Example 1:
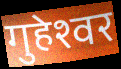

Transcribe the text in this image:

गुहेश्वर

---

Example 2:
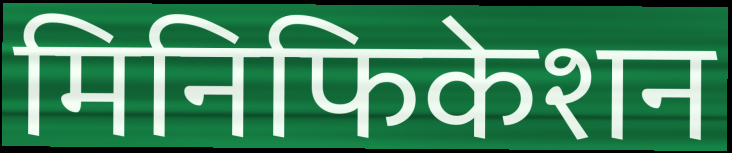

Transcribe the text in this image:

मिनिफिकेशन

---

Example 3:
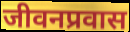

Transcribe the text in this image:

जीवनप्रवास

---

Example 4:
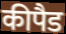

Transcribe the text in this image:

कीपैड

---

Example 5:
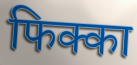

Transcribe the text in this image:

फिक्का